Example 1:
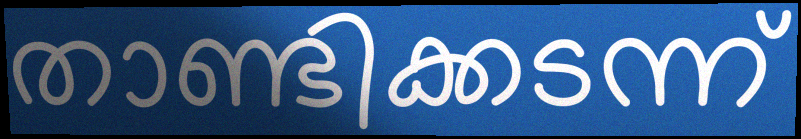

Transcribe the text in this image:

താണ്ടിക്കടന്ന്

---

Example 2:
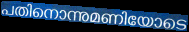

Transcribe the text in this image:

പതിനൊന്നുമണിയോടെ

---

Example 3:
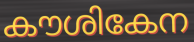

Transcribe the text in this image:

കൗശികേന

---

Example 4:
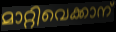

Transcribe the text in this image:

മാറ്റിവെക്കാന്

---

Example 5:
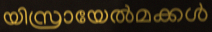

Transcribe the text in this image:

യിസ്രായേൽമക്കൾ